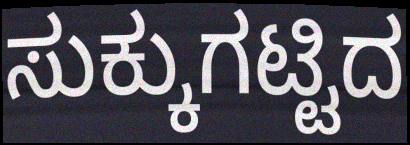
ಸುಕ್ಕುಗಟ್ಟಿದ